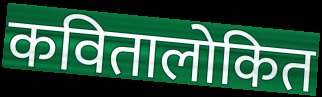
कवितालोकित